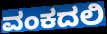
ವಂಕದಲಿ